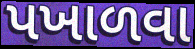
પખાળવા